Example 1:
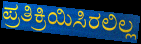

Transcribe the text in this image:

ಪ್ರತಿಕ್ರಿಯಿಸಿರಲಿಲ್ಲ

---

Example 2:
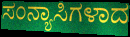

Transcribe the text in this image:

ಸಂನ್ಯಾಸಿಗಳಾದ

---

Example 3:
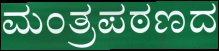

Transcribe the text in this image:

ಮಂತ್ರಪಠಣದ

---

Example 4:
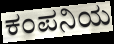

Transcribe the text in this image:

ಕಂಪನಿಯ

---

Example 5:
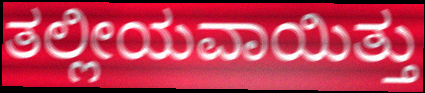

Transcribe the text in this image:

ತಲ್ಲೀಯವಾಯಿತ್ತು